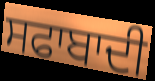
ਸਫਾਬਾਦੀ